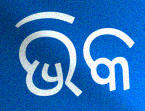
ଭିକ